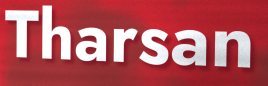
Tharsan